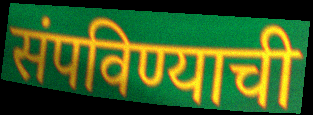
संपविण्याची